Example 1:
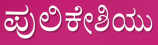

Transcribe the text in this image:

ಪುಲಿಕೇಶಿಯು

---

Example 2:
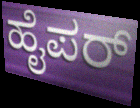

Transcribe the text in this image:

ಹೈಪರ್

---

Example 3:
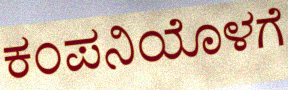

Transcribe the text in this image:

ಕಂಪನಿಯೊಳಗೆ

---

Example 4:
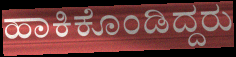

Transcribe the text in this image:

ಹಾಕಿಕೊಂಡಿದ್ದರು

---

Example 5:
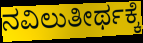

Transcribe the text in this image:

ನವಿಲುತೀರ್ಥಕ್ಕೆ